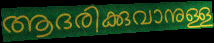
ആദരിക്കുവാനുള്ള